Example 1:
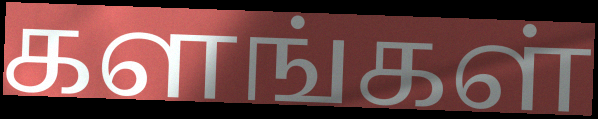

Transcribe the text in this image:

களங்கள்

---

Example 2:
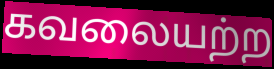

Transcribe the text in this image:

கவலையற்ற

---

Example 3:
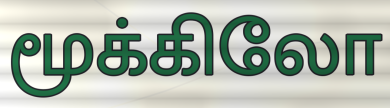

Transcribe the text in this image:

மூக்கிலோ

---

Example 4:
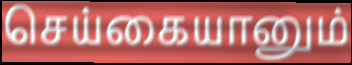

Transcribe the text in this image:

செய்கையானும்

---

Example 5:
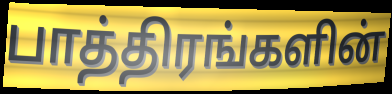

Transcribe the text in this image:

பாத்திரங்களின்